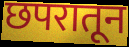
छपरातून